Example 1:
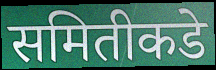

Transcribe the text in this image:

समितीकडे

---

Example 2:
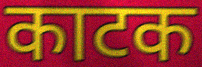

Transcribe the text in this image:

काटक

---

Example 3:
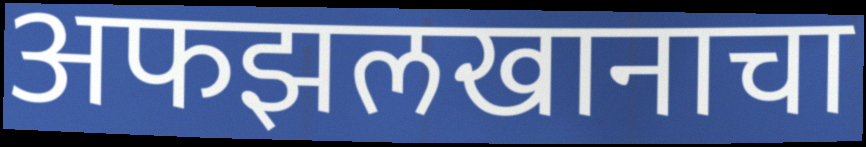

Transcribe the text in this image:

अफझलखानाचा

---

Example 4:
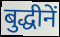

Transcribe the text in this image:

बुद्धीनें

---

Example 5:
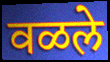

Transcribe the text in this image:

वळले